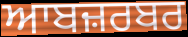
ਆਬਜ਼ਰਬਰ